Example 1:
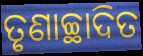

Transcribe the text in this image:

ତୃଣାଚ୍ଛାଦିତ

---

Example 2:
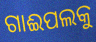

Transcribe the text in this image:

ଗାଈପଲକୁ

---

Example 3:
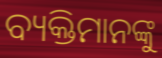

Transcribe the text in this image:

ବ୍ୟକ୍ତିମାନଙ୍କୁ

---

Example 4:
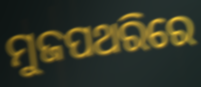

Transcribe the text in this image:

ମୁଜପଥରିରେ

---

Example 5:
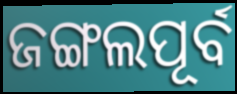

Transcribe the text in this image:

ଜଙ୍ଗଲପୂର୍ବ